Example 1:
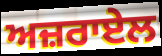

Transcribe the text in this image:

ਅਜ਼ਰਾਏਲ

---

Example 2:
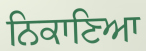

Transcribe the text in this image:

ਨਿਕਾਣਿਆ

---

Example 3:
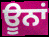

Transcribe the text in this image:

ਊਨਾਂ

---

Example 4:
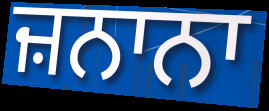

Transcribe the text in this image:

ਜ਼ਨਾਨਾ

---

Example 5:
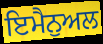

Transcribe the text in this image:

ਇਮੈਨੁਅਲ